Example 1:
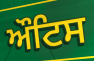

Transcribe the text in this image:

ਔਟਿਸ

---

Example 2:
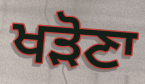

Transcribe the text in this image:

ਖੜੋਣਾ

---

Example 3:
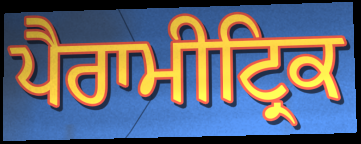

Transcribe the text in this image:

ਪੈਰਾਮੀਟ੍ਰਿਕ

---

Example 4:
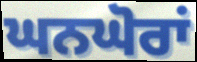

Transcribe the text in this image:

ਘਨਘੋਰਾਂ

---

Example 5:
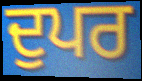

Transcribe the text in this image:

ਦੁਪਰ